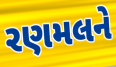
રણમલને